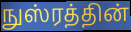
நுஸ்ரத்தின்